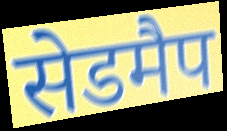
सेडमैप